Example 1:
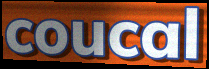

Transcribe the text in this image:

coucal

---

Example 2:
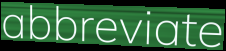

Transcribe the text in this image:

abbreviate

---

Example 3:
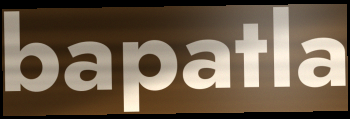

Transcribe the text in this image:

bapatla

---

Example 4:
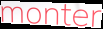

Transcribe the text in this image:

monter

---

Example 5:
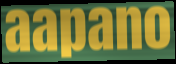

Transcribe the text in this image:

aapano